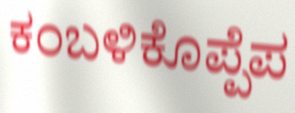
ಕಂಬಳಿಕೊಪ್ಪೆಪ